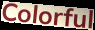
Colorful